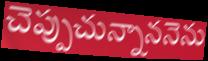
చెప్పుచున్నాననెను